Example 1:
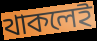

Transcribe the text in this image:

থাকলেই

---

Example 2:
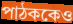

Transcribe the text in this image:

পাঠককেও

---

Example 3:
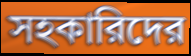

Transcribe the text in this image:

সহকারিদের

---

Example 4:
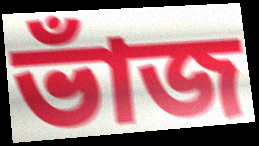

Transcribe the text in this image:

ভাঁজ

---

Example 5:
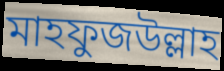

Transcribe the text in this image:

মাহফুজউল্লাহ